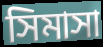
সিমাসা